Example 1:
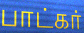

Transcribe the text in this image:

பாட்கர்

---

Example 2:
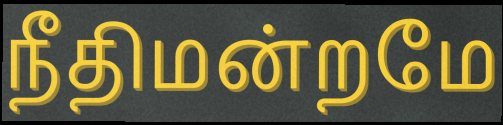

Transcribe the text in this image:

நீதிமன்றமே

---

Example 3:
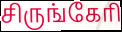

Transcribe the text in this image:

சிருங்கேரி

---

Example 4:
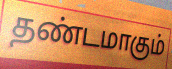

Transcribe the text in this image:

தண்டமாகும்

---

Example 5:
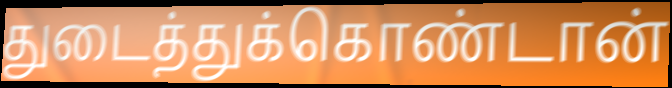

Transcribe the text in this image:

துடைத்துக்கொண்டான்